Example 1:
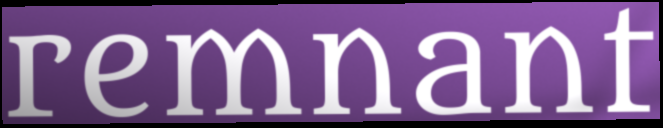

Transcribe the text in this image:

remnant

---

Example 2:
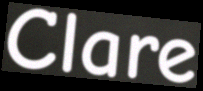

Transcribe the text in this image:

Clare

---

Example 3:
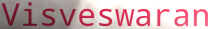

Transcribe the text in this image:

Visveswaran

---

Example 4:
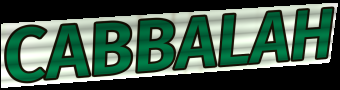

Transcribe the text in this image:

CABBALAH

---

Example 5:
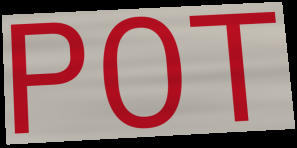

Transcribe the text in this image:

POT